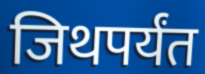
जिथपर्यंत